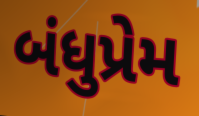
બંધુપ્રેમ